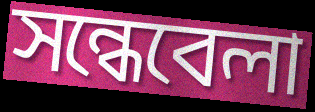
সন্ধেবেলা